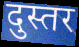
दुस्तर